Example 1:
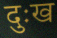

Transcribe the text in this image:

दुःख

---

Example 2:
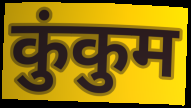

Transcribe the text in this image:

कुंकुम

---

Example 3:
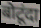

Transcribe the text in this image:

बोटूंदा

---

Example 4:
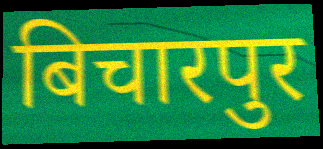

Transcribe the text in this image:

बिचारपुर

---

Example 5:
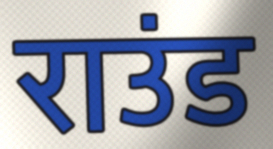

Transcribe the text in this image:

राउंड